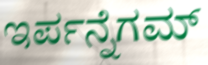
ಇರ್ಪನ್ನೆಗಮ್